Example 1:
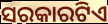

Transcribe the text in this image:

ସରକାରଟିଏ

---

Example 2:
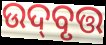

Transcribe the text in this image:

ଉଦ୍‌ବୃତ୍ତ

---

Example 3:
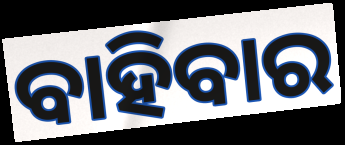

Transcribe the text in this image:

ବାହିବାର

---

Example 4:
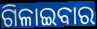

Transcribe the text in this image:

ଗିଳାଇବାର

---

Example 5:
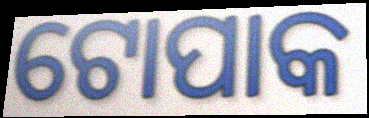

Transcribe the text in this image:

ଟୋପାକ